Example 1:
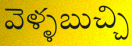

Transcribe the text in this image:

వెళ్ళబుచ్చి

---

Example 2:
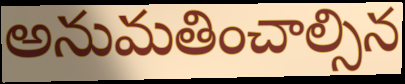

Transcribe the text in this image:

అనుమతించాల్సిన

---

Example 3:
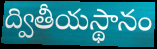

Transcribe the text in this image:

ద్వితీయస్థానం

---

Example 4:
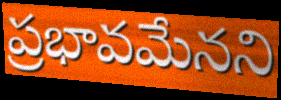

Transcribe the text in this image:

ప్రభావమేనని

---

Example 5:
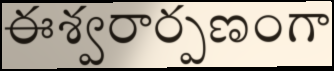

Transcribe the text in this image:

ఈశ్వరార్పణంగా